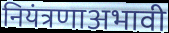
नियंत्रणाअभावी